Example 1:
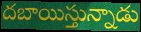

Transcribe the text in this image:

దబాయిస్తున్నాడు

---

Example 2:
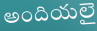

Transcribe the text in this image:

అందియలై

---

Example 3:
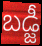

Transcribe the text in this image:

బడ్జీ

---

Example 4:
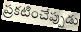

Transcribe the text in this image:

ప్రకటించేప్పుడు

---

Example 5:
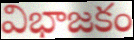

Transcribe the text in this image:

విభాజకం